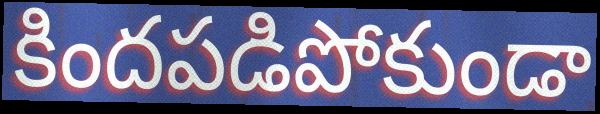
కిందపడిపోకుండా